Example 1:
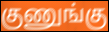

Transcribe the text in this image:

குணுங்கு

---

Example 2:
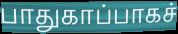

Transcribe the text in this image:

பாதுகாப்பாகச்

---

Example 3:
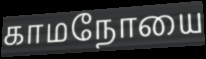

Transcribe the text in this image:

காமநோயை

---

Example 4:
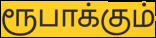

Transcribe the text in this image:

ரூபாக்கும்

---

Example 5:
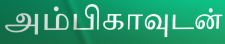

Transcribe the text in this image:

அம்பிகாவுடன்